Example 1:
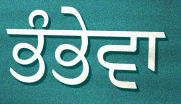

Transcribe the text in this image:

ਭੰਭੇਵਾ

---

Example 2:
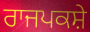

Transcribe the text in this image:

ਰਾਜਪਕਸ਼ੇ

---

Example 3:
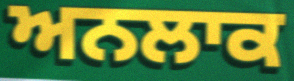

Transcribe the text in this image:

ਅਨਲਾਕ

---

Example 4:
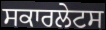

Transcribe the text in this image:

ਸਕਾਰਲੇਟਸ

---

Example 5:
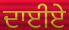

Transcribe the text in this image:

ਦਾਈਏ